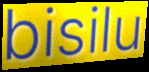
bisilu